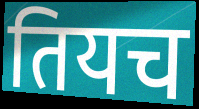
तियच